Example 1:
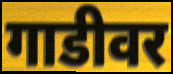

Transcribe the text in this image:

गाडीवर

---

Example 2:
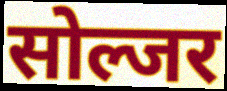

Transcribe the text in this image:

सोल्जर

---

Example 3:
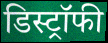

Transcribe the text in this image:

डिस्ट्रॉफी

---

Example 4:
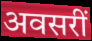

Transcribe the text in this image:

अवसरीं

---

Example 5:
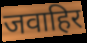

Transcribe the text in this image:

जवाहिर